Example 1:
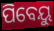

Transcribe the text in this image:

ପିବେୟୁ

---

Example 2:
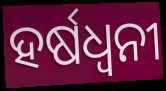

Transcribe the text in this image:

ହର୍ଷଧ୍ୱନୀ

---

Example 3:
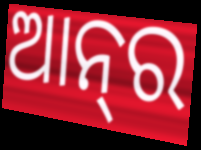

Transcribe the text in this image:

ଆନ୍‌ର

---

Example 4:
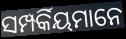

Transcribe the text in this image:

ସମ୍ପର୍କିୟମାନେ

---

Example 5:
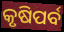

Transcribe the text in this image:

କୃଷିପର୍ବ